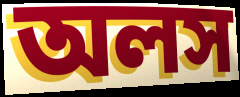
অলস